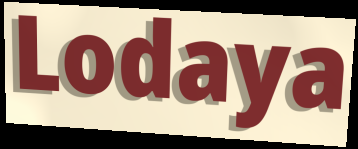
Lodaya